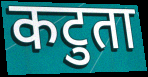
कटुता